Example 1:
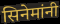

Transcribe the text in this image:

सिनेमांनी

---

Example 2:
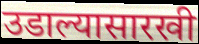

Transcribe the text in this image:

उडाल्यासारखी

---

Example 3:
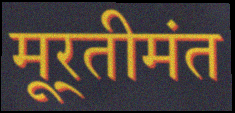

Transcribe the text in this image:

मूर्तीमंत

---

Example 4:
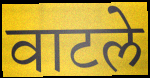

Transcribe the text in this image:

वाटले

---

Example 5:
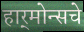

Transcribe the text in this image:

हार्मोन्सचे